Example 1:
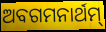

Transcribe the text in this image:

ଅବଗମନାର୍ଥମ୍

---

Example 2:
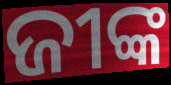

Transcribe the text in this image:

ଜୀଙ୍କ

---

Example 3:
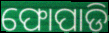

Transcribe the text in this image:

ଫୋପାଡି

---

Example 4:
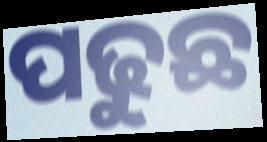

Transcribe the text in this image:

ପଢୁଛ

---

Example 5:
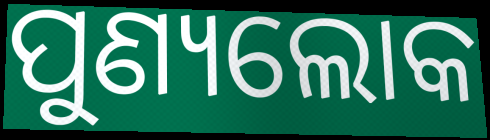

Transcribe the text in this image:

ପୁଣ୍ୟଲୋକ